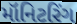
મૉનિટરિંગ